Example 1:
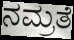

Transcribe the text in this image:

ನಮ್ರತೆ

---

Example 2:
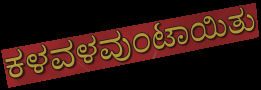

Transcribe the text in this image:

ಕಳವಳವುಂಟಾಯಿತು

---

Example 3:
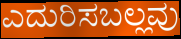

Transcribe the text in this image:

ಎದುರಿಸಬಲ್ಲವು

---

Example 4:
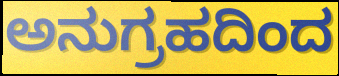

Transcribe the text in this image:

ಅನುಗ್ರಹದಿಂದ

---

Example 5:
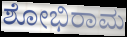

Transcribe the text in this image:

ಶೋಭಿರಾಮ